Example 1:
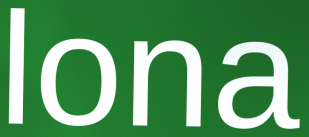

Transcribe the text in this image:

lona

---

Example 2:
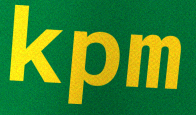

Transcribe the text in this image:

kpm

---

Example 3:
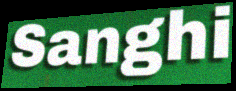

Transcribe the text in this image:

Sanghi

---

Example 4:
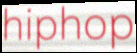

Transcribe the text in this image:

hiphop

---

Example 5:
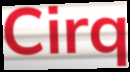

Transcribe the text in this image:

Cirq